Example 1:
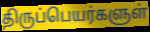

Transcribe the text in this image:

திருப்பெயர்களுள்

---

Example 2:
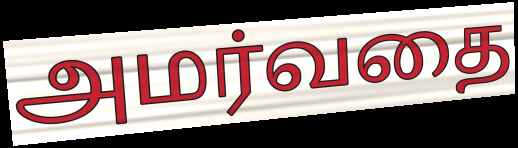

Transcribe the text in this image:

அமர்வதை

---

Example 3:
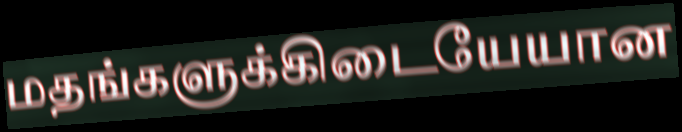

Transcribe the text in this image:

மதங்களுக்கிடையேயான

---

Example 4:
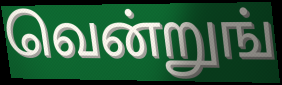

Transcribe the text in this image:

வென்றுங்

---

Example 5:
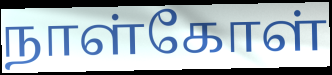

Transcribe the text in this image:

நாள்கோள்